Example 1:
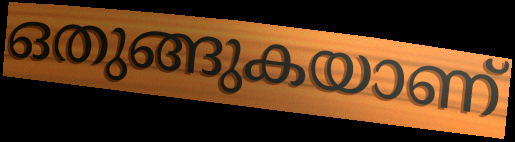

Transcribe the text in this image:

ഒതുങ്ങുകയാണ്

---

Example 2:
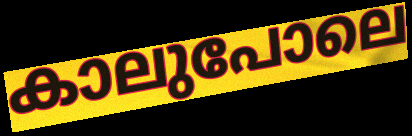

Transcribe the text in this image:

കാലുപോലെ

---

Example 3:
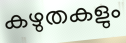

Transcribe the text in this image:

കഴുതകളും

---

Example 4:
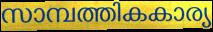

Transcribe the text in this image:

സാമ്പത്തികകാര്യ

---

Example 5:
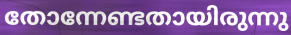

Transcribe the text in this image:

തോന്നേണ്ടതായിരുന്നു